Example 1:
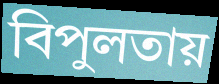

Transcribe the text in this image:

বিপুলতায়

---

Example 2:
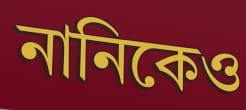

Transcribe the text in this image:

নানিকেও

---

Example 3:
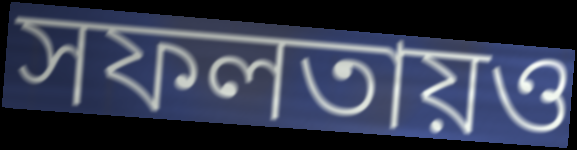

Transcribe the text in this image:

সফলতায়ও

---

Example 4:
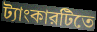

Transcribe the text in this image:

ট্যাংকারটিতে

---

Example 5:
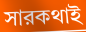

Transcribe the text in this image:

সারকথাই